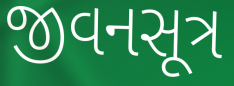
જીવનસૂત્ર